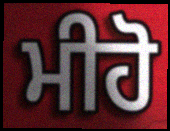
ਮੀਹੋ